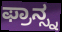
ಫ್ರಾನ್ಸ್ನ